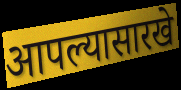
आपल्यासारखे